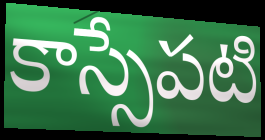
కాస్సేపటి